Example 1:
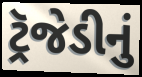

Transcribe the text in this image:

ટ્રૅજેડીનું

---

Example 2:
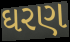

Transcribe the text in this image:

ઘરણ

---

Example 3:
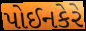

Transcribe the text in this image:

પોઈનકેરે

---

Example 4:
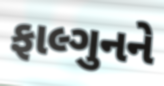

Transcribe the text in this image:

ફાલ્ગુનને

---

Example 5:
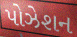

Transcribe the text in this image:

પોઝેશન